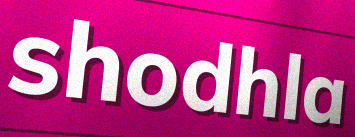
shodhla